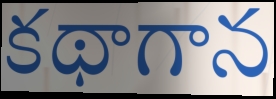
కథాగాన